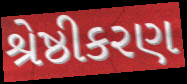
શ્રેષ્ઠીકરણ